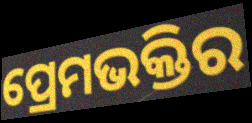
ପ୍ରେମଭକ୍ତିର